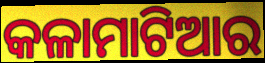
କଳାମାଟିଆର